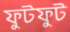
ফুটফুট